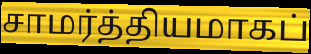
சாமர்த்தியமாகப்